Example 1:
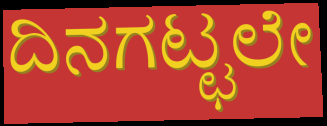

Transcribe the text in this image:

ದಿನಗಟ್ಟಲೇ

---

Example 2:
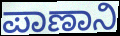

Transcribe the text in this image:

ಪಾಣಾನಿ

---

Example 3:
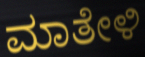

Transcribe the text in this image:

ಮಾತೇಳಿ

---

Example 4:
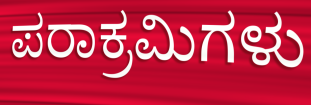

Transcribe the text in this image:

ಪರಾಕ್ರಮಿಗಳು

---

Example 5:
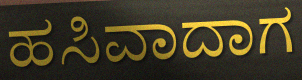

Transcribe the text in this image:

ಹಸಿವಾದಾಗ